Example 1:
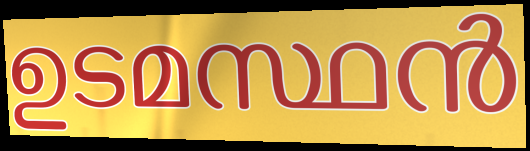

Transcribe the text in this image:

ഉടമസ്ഥൻ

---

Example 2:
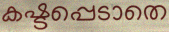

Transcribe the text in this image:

കഷ്ടപ്പെടാതെ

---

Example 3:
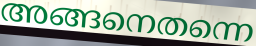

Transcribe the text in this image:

അങ്ങനെതന്നെ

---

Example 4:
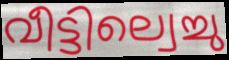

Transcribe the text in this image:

വീട്ടില്വെച്ചു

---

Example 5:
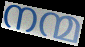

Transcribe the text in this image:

നന്മ